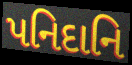
પનિદાનિ